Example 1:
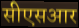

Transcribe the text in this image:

सीएसआर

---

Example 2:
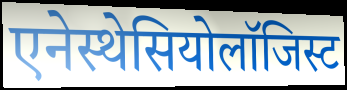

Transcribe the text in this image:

एनेस्थेसियोलॉजिस्ट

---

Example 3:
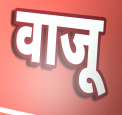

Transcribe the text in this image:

वाजू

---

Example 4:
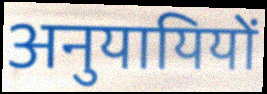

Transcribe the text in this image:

अनुयायियों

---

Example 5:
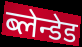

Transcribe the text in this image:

ब्लेन्डेड